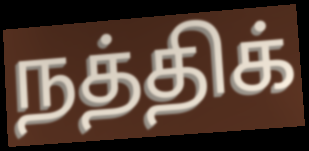
நத்திக்